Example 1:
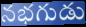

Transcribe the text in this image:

నభగుడు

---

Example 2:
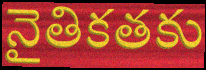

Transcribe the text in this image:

నైతికతకు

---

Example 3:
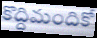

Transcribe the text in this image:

కొద్దిమందికో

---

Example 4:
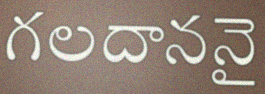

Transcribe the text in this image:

గలదాననై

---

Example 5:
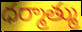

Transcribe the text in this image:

ధర్మాత్ము